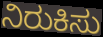
ನಿರುಕಿಸು